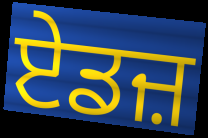
ਏਡਜ਼